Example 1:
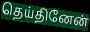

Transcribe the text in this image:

தெய்தினேன்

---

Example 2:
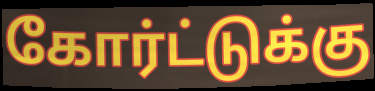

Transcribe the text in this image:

கோர்ட்டுக்கு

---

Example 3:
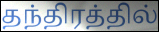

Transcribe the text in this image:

தந்திரத்தில்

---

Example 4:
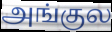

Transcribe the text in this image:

அங்குல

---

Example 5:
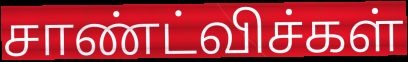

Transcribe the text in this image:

சாண்ட்விச்கள்